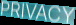
PRIVACY